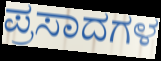
ಪ್ರಸಾದಗಳ